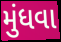
મુંધવા